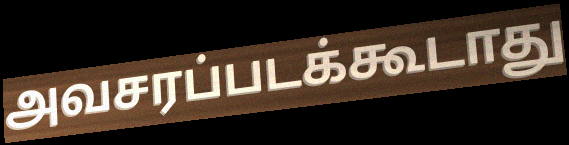
அவசரப்படக்கூடாது